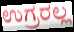
ಉಗ್ರರಲ್ಲ